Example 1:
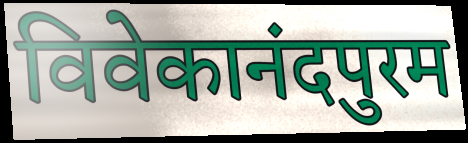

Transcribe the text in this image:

विवेकानंदपुरम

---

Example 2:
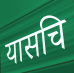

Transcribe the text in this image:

यासचि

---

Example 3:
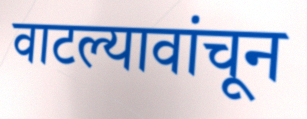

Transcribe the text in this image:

वाटल्यावांचून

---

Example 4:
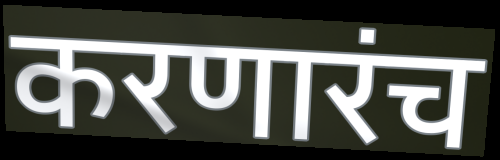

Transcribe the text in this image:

करणारंच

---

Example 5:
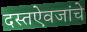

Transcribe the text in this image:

दस्तऐवजांचे